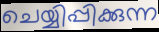
ചെയ്യിപ്പിക്കുന്ന